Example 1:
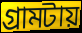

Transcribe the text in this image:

গ্রামটায়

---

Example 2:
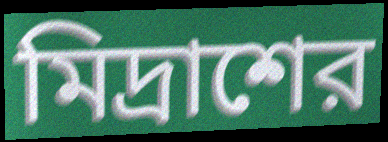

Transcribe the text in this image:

মিদ্রাশের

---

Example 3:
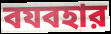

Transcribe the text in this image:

বযবহার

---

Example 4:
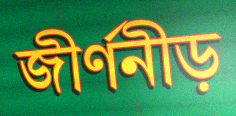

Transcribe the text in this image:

জীর্ণনীড়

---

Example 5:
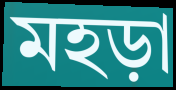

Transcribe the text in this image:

মহড়া